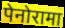
पेनोरामा